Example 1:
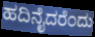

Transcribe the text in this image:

ಹದಿನೈದರೆಂದು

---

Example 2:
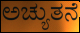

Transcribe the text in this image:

ಅಚ್ಯುತನೆ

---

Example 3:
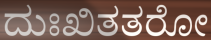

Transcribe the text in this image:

ದುಃಖಿತತರೋ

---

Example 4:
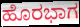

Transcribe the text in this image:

ಹೊರಭಾಗ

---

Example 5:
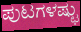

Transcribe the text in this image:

ಪುಟಗಳಷ್ಟು